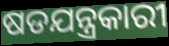
ଷଡଯନ୍ତ୍ରକାରୀ